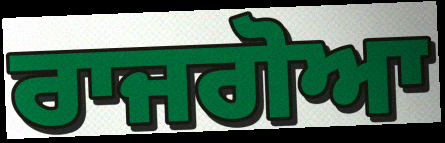
ਰਾਜਗੋਆ